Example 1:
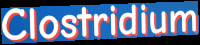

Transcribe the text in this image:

Clostridium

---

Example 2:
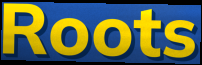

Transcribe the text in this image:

Roots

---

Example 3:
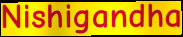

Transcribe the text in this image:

Nishigandha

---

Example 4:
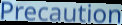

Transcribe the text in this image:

Precaution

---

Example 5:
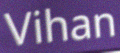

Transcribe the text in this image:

Vihan